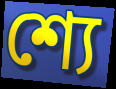
শ্যে